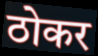
ठोकर